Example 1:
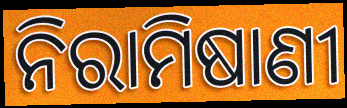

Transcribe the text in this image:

ନିରାମିଷାଣୀ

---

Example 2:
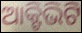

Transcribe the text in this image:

ଆକ୍ଟିଭିଟି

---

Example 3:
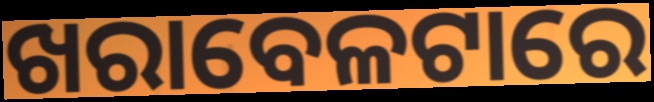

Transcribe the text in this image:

ଖରାବେଳଟାରେ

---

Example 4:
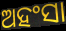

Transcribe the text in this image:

ଅହଂସା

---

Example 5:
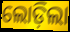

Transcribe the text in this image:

ଲୋଡ଼ିଲା